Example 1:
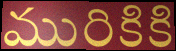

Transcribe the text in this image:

మురికికి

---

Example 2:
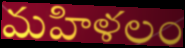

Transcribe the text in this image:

మహిళలం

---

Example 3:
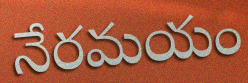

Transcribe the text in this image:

నేరమయం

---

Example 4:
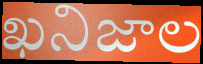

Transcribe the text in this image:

ఖనిజాల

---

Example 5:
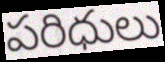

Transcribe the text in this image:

పరిధులు